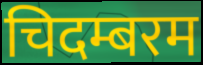
चिदम्बरम